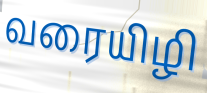
வரையிழி